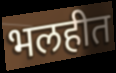
भलहीत